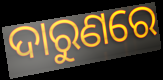
ଦାରୁଣରେ